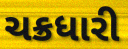
ચક્રધારી